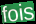
fois